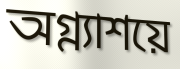
অগ্ন্যাশয়ে